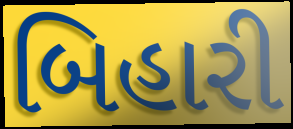
બિહારી